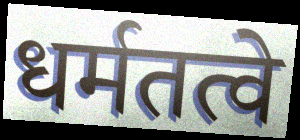
धर्मतत्वे